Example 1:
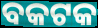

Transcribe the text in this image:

ବକଟକ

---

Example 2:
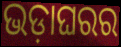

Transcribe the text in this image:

ଭଡ଼ାଘରର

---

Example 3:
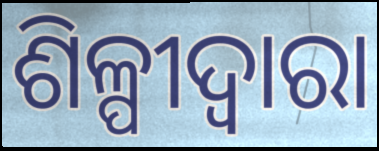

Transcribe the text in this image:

ଶିଳ୍ପୀଦ୍ୱାରା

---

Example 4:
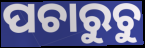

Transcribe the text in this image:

ପଚାରୁଚୁ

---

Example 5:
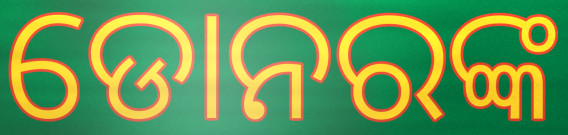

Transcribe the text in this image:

ଡୋନରଙ୍କ